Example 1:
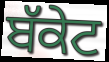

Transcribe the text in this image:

ਬੱਕੇਟ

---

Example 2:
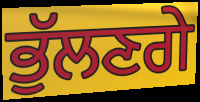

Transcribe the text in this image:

ਭੁੱਲਣਗੇ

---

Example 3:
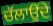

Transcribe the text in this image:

ਚੱਲਾਉਂਦੇ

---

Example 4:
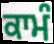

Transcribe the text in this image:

ਕਾਮੰ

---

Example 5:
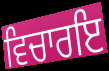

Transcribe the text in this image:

ਵਿਚਾਰਇ